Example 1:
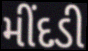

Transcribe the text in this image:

મીંદડી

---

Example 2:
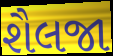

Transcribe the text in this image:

શૈલજા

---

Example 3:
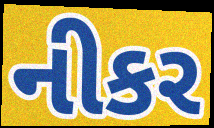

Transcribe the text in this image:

નીકર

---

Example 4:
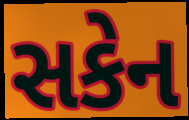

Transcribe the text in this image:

સકેન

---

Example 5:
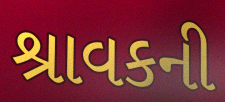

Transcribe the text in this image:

શ્રાવકની